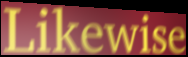
Likewise